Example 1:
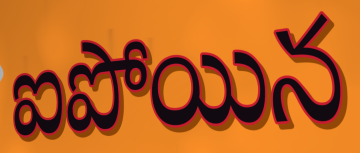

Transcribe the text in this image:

ఐపోయిన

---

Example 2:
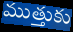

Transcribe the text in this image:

ముత్తుకు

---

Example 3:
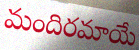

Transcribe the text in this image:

మందిరమాయే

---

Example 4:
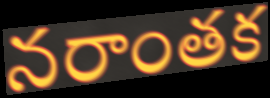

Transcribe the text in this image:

నరాంతక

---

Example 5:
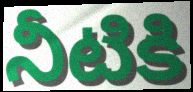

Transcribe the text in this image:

నీటికి